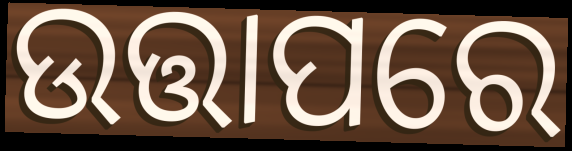
ଉତ୍ତାପରେ